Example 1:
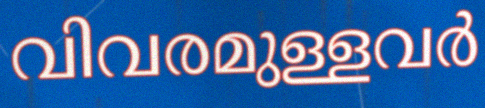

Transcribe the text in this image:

വിവരമുള്ളവർ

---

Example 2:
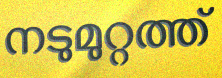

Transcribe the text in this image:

നടുമുറ്റത്ത്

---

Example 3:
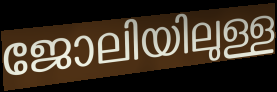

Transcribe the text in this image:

ജോലിയിലുള്ള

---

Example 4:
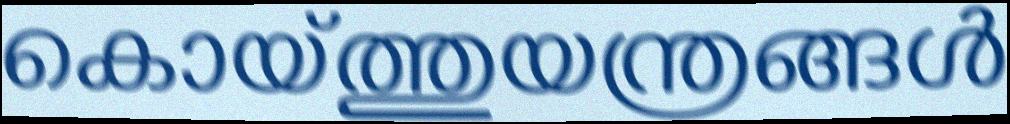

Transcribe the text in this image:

കൊയ്ത്തുയന്ത്രങ്ങൾ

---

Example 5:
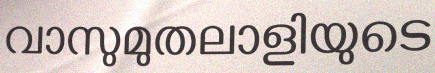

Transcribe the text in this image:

വാസുമുതലാളിയുടെ